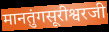
मानतुंगसूरीश्वरजी